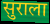
सुराला